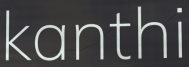
kanthi